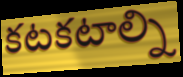
కటకటాల్ని